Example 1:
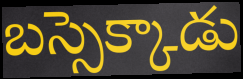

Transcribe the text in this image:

బస్సెక్కాడు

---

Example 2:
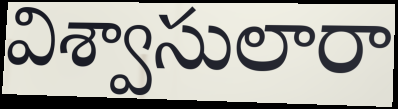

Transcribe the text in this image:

విశ్వాసులారా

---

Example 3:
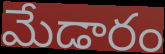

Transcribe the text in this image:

మేడారం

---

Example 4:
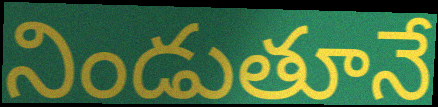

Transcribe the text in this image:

నిండుతూనే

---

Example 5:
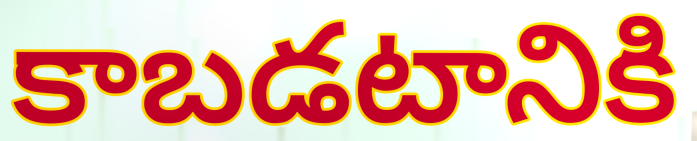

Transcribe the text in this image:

కాబడటానికి